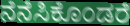
ನೆನೆಸಿಕೊಂಡರೆ